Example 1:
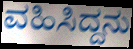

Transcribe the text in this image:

ವಹಿಸಿದ್ದನು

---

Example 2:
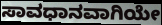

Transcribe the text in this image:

ಸಾವಧಾನವಾಗಿಯೇ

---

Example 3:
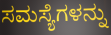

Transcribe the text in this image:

ಸಮಸ್ಯೆಗಳನ್ನು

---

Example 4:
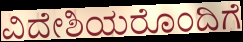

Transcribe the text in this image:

ವಿದೇಶಿಯರೊಂದಿಗೆ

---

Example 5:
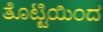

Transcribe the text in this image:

ತೊಟ್ಟಿಯಿಂದ